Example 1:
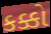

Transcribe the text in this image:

કક્કો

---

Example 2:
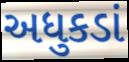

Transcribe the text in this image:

અધુકડાં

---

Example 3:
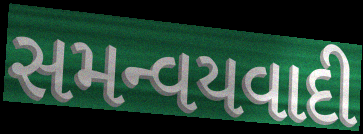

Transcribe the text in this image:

સમન્વયવાદી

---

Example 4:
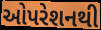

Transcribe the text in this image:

ઓપરેશનથી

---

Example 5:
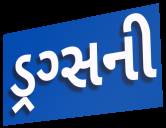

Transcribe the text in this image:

ડ્રગ્સની